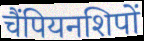
चैंपियनशिपों